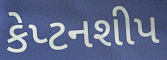
કેપ્ટનશીપ